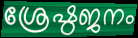
ശ്രേഷ്ഠജനം